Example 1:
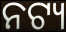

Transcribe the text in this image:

ନଟ୍ୟ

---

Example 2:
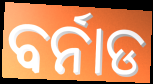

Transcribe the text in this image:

ବର୍ନାଡ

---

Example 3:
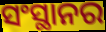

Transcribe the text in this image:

ସଂସ୍ଥାନର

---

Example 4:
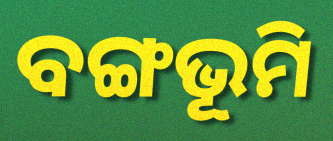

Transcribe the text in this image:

ବଙ୍ଗଭୂମି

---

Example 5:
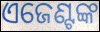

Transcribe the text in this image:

ଏଜେଣ୍ଟଙ୍କ